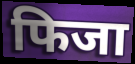
फिजा